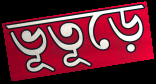
ভূতূড়ে